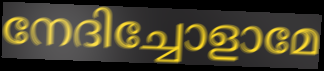
നേദിച്ചോളാമേ